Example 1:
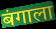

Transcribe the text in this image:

बंगाला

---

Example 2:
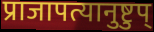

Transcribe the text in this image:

प्राजापत्यानुष्टुप्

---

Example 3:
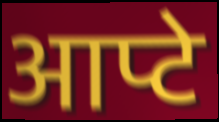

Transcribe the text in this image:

आप्टे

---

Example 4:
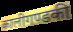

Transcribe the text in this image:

कालीगण्डकी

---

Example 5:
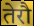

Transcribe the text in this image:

तेरौ